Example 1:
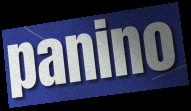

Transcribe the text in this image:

panino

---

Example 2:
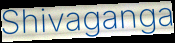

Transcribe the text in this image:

Shivaganga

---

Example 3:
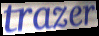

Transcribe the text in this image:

trazer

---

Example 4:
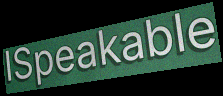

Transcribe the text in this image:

ISpeakable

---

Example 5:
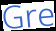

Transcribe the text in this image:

Gre